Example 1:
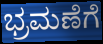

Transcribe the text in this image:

ಭ್ರಮಣೆಗೆ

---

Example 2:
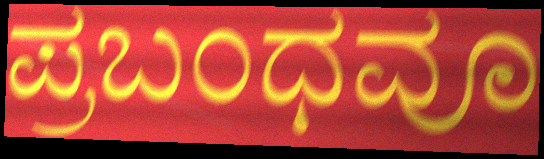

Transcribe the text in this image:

ಪ್ರಬಂಧವೂ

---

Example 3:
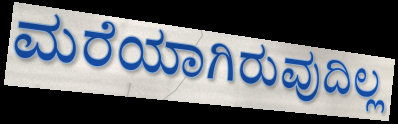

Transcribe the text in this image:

ಮರೆಯಾಗಿರುವುದಿಲ್ಲ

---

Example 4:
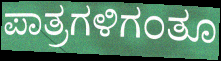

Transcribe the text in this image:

ಪಾತ್ರಗಳಿಗಂತೂ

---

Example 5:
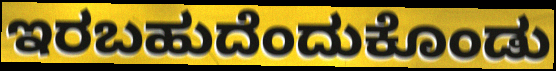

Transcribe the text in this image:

ಇರಬಹುದೆಂದುಕೊಂಡು